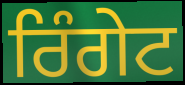
ਰਿੰਗੇਟ